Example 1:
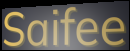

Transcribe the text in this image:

Saifee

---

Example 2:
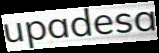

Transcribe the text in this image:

upadesa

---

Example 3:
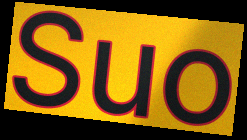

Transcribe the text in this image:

Suo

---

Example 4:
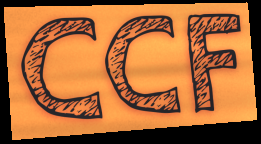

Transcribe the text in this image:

CCF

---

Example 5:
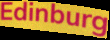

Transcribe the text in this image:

Edinburg